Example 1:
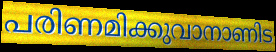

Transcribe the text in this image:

പരിണമിക്കുവാനാണിട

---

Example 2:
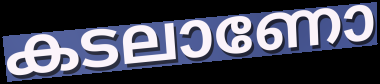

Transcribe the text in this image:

കടലാണോ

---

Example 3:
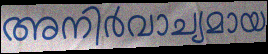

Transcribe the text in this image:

അനിർവാച്യമായ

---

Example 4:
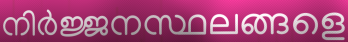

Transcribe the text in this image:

നിർജ്ജനസ്ഥലങ്ങളെ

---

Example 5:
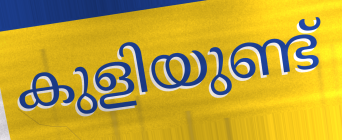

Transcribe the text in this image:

കുളിയുണ്ട്